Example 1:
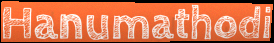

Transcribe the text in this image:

Hanumathodi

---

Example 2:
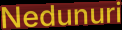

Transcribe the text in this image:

Nedunuri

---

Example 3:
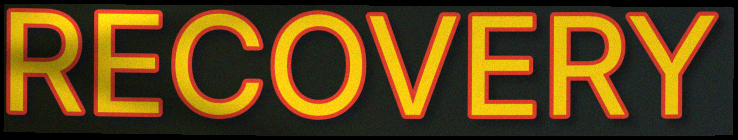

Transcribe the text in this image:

RECOVERY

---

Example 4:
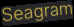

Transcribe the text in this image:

Seagram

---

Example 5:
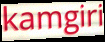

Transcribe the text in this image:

kamgiri